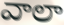
వాలా